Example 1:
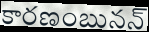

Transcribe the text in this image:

కారణంబునన్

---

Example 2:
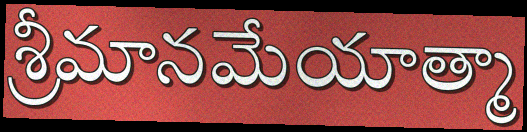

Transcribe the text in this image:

శ్రీమానమేయాత్మా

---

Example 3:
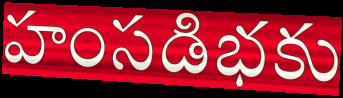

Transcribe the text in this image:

హంసడిభకు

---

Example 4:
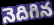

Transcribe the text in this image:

నెదిగిన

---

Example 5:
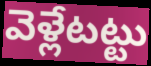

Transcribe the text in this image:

వెళ్లేటట్టు